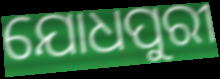
ଯୋଧପୁରୀ